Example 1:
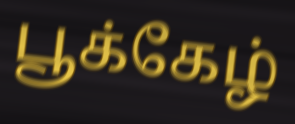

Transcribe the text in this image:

பூக்கேழ்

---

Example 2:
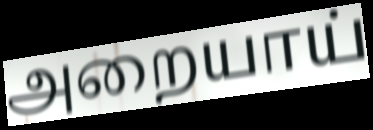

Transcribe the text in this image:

அறையாய்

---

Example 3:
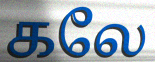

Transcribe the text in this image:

கலே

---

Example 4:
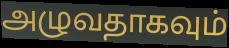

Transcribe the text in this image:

அழுவதாகவும்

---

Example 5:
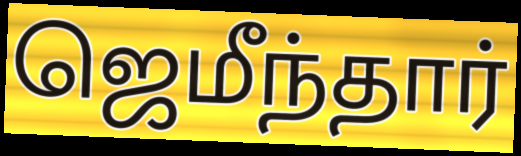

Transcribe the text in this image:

ஜெமீந்தார்